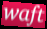
waft